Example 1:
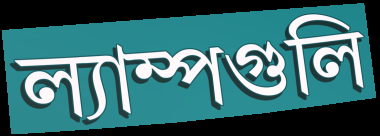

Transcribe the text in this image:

ল্যাম্পগুলি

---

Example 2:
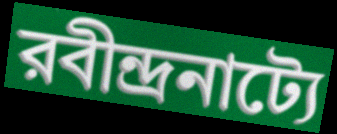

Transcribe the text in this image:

রবীন্দ্রনাট্যে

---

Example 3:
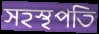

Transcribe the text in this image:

সহস্থপতি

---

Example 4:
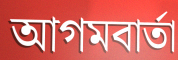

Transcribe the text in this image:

আগমবার্তা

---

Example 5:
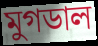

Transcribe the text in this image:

মুগডাল